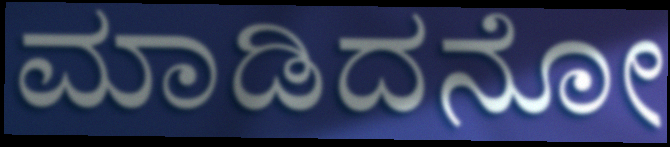
ಮಾಡಿದನೋ